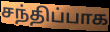
சந்திப்பாக